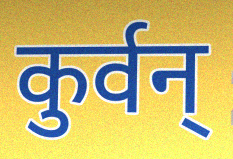
कुर्वन्